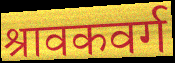
श्रावकवर्ग